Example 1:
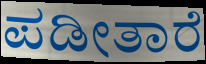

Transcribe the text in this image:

ಪಡೀತಾರೆ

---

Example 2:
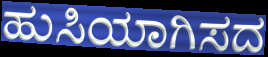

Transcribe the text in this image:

ಹುಸಿಯಾಗಿಸದ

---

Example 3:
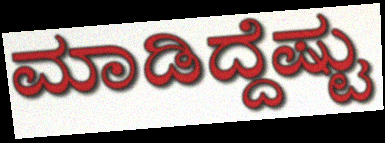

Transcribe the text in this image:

ಮಾಡಿದ್ದೆಷ್ಟು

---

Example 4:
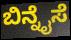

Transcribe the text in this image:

ಬಿನ್ನೈಸೆ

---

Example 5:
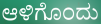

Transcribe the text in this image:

ಆಳಿಗೊಂದು